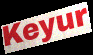
Keyur